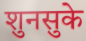
शुनसुके